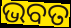
ଭବତ